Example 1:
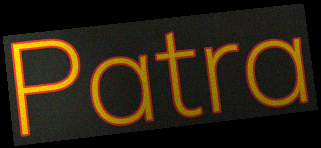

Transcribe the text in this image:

Patra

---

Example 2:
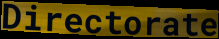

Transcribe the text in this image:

Directorate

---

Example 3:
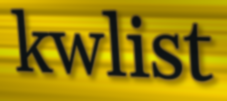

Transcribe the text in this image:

kwlist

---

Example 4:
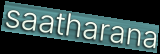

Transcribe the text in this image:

saatharana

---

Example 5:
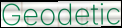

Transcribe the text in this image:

Geodetic